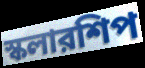
স্কলারশিপ